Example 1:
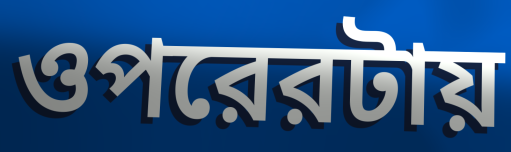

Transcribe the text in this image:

ওপরেরটায়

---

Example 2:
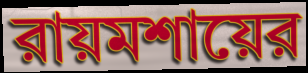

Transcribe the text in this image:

রায়মশায়ের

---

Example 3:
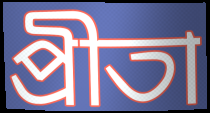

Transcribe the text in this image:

প্রীতা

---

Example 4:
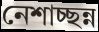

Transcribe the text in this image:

নেশাচ্ছন্ন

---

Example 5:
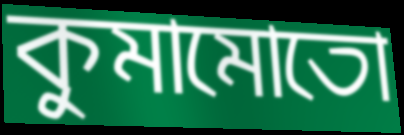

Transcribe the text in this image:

কুমামোতো